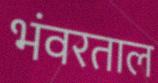
भंवरताल